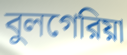
বুলগেরিয়া